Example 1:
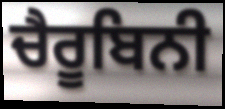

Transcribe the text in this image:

ਚੈਰੂਬਿਨੀ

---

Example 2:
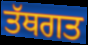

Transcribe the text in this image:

ਤੱਥਗਤ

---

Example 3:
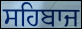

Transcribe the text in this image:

ਸਹਿਬਾਜ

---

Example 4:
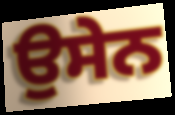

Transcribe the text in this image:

ਉਸੇਨ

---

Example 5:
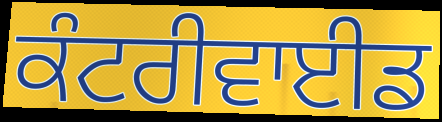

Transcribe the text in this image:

ਕੰਟਰੀਵਾਈਡ